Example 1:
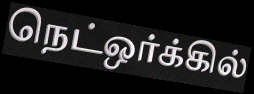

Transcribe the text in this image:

நெட்ஒர்க்கில்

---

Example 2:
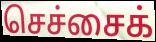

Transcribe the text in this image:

செச்சைக்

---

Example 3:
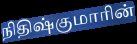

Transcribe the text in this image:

நிதிஷ்குமாரின்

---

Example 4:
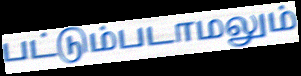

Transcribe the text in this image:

பட்டும்படாமலும்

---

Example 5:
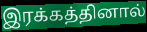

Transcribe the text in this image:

இரக்கத்தினால்